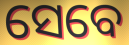
ସେବେ